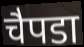
चैपडा